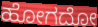
ಹೋಗದೋ